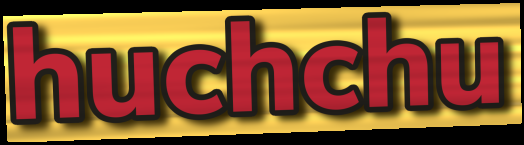
huchchu